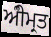
ਅੰੀਮ੍ਰਤ